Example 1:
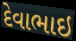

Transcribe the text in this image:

દેવાભાઇ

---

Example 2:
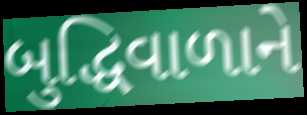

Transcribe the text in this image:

બુદ્ધિવાળાને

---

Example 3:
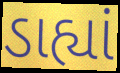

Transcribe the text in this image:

ડાહ્યાં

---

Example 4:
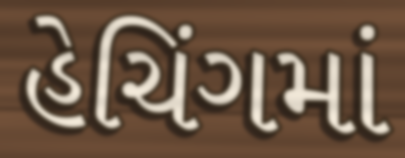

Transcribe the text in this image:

હેચિંગમાં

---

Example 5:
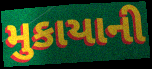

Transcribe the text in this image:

મુકાયાની